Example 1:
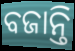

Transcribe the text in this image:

ବଜାନ୍ତି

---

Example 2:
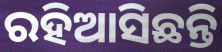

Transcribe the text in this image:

ରହିଆସିଛନ୍ତି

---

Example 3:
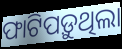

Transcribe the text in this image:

ଫାଟିପଡ଼ୁଥିଲା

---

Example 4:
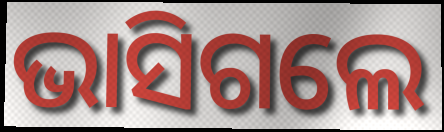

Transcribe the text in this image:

ଭାସିଗଲେ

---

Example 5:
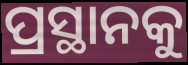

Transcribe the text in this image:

ପ୍ରସ୍ଥାନକୁ